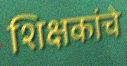
शिक्षकांचे